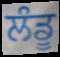
ਲੰਡੂ